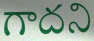
గాదని